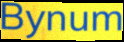
Bynum